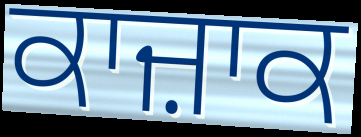
ਕਾਜ਼ਾਕ